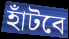
হাঁটবে